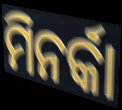
ମିନର୍କା